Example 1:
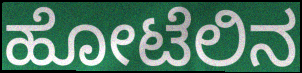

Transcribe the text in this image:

ಹೋಟೆಲಿನ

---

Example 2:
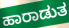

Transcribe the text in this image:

ಹಾರಾಡುತ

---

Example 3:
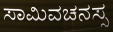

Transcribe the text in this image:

ಸಾಮಿವಚನಸ್ಸ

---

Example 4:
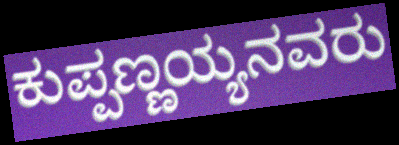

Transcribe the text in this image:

ಕುಪ್ಪಣ್ಣಯ್ಯನವರು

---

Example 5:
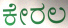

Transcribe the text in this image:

ಕೇರಲ